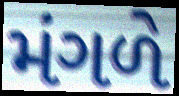
મંગળે